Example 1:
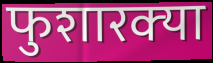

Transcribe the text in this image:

फुशारक्‍या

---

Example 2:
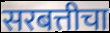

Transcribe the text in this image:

सरबत्तीचा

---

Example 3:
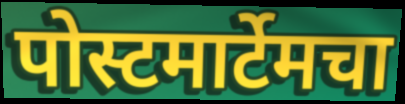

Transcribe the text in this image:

पोस्टमार्टेमचा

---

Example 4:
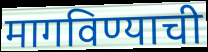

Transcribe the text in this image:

मागविण्याची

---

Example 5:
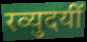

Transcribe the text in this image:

रव्युदयीं